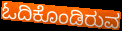
ಓದಿಕೊಂಡಿರುವ